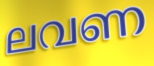
ലവണ